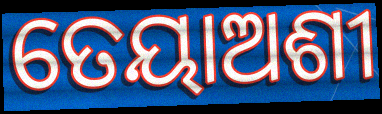
ତେୟାଅଶୀ